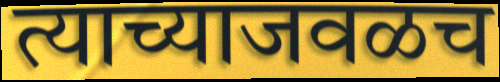
त्याच्याजवळच